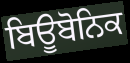
ਬਿਊਬੋਨਿਕ